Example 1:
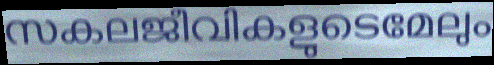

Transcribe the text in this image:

സകലജീവികളുടെമേലും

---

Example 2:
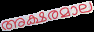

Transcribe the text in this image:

അക്ഷരമാല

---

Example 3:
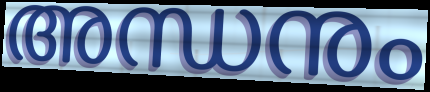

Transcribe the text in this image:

അന്ധനും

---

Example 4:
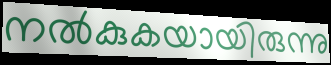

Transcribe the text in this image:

നൽകുകയായിരുന്നു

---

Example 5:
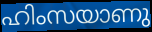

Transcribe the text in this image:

ഹിംസയാണു